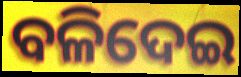
ବଳିଦେଇ